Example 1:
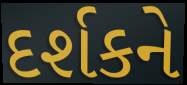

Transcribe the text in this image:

દર્શકને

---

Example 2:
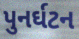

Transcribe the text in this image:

પુનર્ઘટન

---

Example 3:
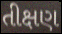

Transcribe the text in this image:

તીક્ષણ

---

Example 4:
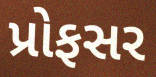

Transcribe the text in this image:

પ્રોફસર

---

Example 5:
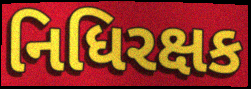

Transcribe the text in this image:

નિધિરક્ષક